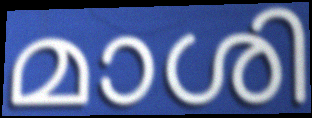
മാശി